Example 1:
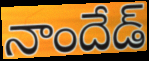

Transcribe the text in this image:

నాందేడ్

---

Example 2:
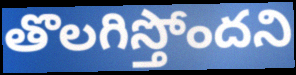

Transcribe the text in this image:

తొలగిస్తోందని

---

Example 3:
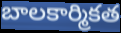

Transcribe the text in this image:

బాలకార్మికత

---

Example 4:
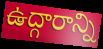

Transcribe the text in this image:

ఉద్గారాన్ని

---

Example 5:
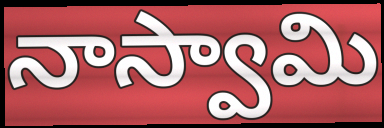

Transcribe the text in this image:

నాస్వామి